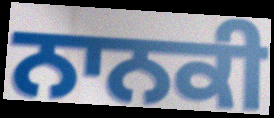
ਨਾਨਕੀ